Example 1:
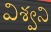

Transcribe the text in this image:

విశ్వని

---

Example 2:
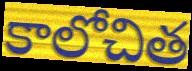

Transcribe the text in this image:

కాలోచిత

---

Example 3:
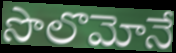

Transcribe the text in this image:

సొలొమోనే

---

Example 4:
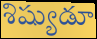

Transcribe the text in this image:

శిష్యుడూ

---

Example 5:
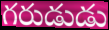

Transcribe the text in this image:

గరుడుడు